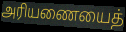
அரியணையைத்